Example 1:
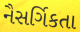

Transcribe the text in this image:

નૈસર્ગિકતા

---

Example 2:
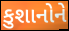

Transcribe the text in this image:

કુશાનોને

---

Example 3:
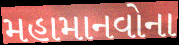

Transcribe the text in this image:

મહામાનવોના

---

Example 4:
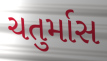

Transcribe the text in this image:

ચતુર્માસ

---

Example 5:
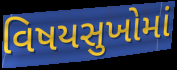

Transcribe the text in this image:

વિષયસુખોમાં